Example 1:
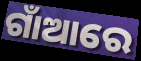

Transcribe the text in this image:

ଗାଁଆରେ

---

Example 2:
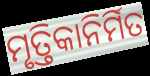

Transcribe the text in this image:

ମୃତ୍ତିକାନିର୍ମିତ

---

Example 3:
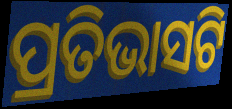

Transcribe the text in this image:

ପ୍ରତିଭାସଟି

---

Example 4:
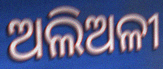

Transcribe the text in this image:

ଅଲିଅଳୀ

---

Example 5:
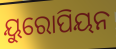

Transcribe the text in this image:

ୟୁରୋପିୟନ